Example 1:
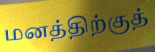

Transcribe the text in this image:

மனத்திற்குத்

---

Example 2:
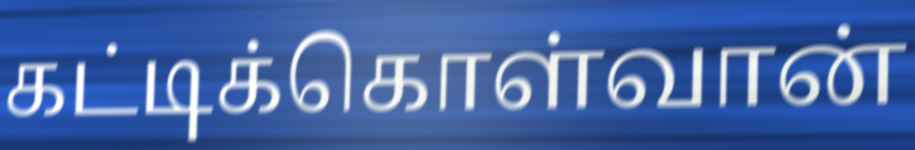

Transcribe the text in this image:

கட்டிக்கொள்வான்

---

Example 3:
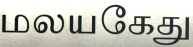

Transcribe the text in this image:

மலயகேது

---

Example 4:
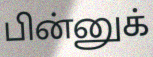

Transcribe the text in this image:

பின்னுக்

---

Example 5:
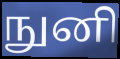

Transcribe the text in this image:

நுனி